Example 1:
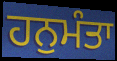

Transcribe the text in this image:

ਹਨੁਮੰਤਾ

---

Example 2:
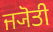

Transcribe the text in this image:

ਜ੍ਯੋਤੀ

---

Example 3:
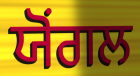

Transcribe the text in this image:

ਯੋਂਗਲ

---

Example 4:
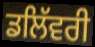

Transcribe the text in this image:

ਡਲਿੱਵਰੀ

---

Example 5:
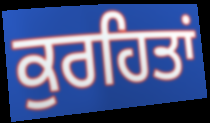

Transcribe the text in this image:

ਕੁਰਹਿਤਾਂ